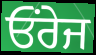
ਓਂਰੇਜ